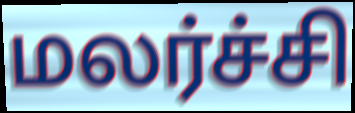
மலர்ச்சி